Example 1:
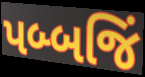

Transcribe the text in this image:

પબ્બજિં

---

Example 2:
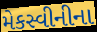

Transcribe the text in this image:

મેકસ્વીનીના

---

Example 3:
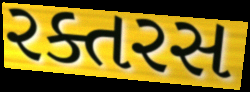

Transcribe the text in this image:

રક્તરસ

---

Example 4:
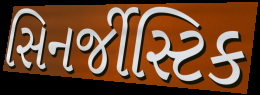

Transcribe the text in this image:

સિનર્જીસ્ટિક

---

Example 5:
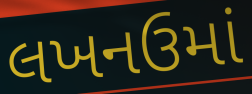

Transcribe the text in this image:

લખનઉમાં